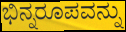
ಭಿನ್ನರೂಪವನ್ನು